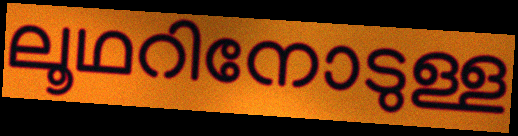
ലൂഥറിനോടുള്ള